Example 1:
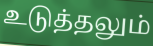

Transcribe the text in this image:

உடுத்தலும்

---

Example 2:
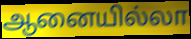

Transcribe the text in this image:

ஆனையில்லா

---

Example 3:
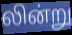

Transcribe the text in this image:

லின்று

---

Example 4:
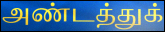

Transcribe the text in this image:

அண்டத்துக்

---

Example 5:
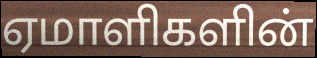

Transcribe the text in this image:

ஏமாளிகளின்